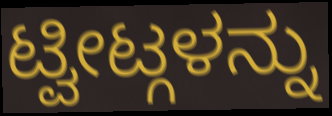
ಟ್ವೀಟ್ಗಳನ್ನು